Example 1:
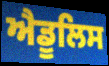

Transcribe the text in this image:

ਐਡੂਲਿਸ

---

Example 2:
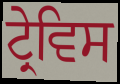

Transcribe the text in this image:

ਟ੍ਰੇਵਿਸ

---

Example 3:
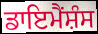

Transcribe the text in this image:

ਡਾਇਮੈਂਸ਼ੰਸ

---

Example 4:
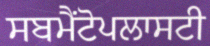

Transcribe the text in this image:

ਸਬਮੈਂਟੋਪਲਾਸਟੀ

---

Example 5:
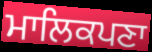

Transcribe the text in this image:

ਮਾਲਿਕਪਣਾ